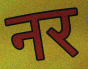
नर